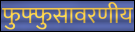
फुफ्फुसावरणीय